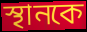
স্থানকে